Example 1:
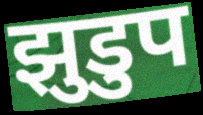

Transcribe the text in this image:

झुडुप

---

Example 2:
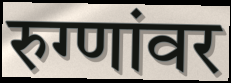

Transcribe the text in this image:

रुग्णांवर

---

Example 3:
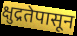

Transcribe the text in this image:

क्षुद्रतेपासून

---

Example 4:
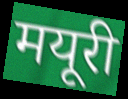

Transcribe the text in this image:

मयूरी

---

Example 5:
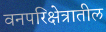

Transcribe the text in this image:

वनपरिक्षेत्रातील